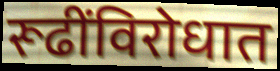
रूढींविरोधात